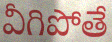
వీగిపోతే